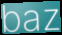
baz